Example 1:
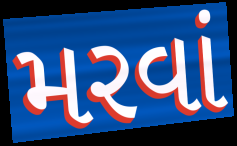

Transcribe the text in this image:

મરવાં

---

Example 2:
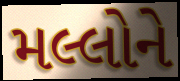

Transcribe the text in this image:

મલ્લોને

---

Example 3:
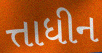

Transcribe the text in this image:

ત્તાધીન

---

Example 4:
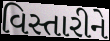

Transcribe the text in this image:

વિસ્તારીને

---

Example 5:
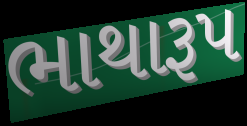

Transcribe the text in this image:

ભાથારૂપ